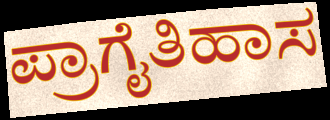
ಪ್ರಾಗೈತಿಹಾಸ